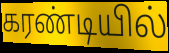
கரண்டியில்